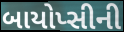
બાયોપ્સીની